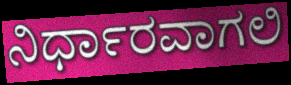
ನಿರ್ಧಾರವಾಗಲಿ